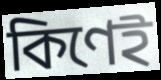
কিণেই